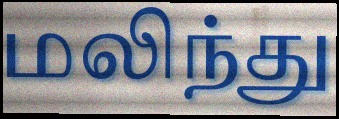
மலிந்து